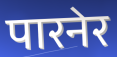
पारनेर